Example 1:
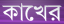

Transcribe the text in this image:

কাখের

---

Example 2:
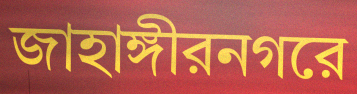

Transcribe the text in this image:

জাহাঙ্গীরনগরে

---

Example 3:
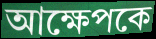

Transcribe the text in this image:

আক্ষেপকে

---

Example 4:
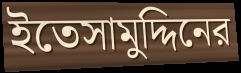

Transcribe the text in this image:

ইতেসামুদ্দিনের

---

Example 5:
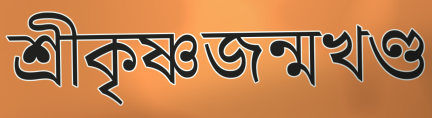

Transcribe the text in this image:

শ্রীকৃষ্ণজন্মখণ্ড